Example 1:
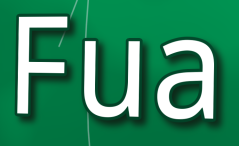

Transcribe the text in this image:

Fua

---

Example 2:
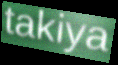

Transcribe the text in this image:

takiya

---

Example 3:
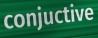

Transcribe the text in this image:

conjuctive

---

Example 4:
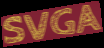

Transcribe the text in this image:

SVGA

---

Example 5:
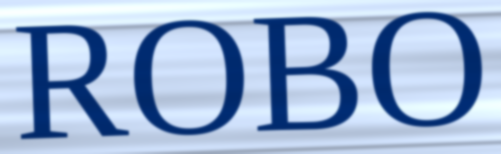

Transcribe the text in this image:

ROBO